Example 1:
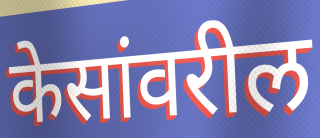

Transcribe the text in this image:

केसांवरील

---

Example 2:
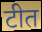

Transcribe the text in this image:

टीत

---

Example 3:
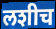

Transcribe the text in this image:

लशीच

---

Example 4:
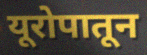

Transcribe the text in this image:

यूरोपातून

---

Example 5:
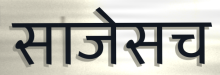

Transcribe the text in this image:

साजेसच